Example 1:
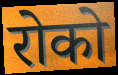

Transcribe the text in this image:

रोको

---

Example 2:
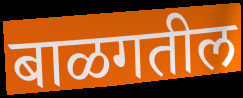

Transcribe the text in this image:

बाळगतील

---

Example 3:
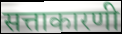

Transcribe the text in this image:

सत्ताकारणी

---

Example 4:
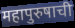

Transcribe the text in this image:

महापुरुषाची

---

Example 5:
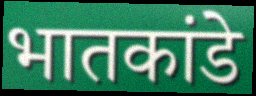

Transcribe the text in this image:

भातकांडे